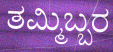
ತಮ್ಮಿಬ್ಬರ